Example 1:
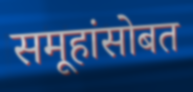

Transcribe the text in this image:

समूहांसोबत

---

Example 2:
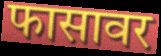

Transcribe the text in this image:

फासावर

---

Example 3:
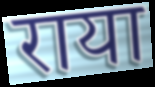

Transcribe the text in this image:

राया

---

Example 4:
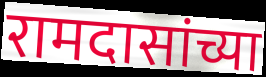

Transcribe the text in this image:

रामदासांच्या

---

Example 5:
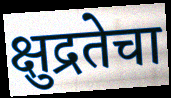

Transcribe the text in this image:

क्षुद्रतेचा